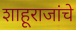
शाहूराजांचे